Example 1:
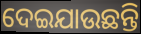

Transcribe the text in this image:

ଦେଇଯାଉଛନ୍ତି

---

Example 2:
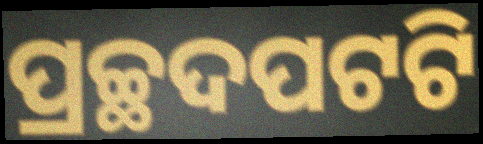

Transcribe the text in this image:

ପ୍ରଚ୍ଛଦପଟଟି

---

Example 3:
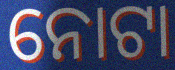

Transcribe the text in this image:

ନୋଟା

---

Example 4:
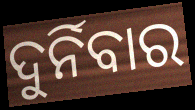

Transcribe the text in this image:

ଦୁର୍ନିବାର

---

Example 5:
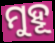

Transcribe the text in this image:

ମୁହୂ